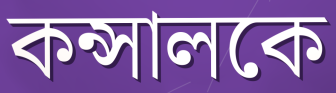
কন্সালকে